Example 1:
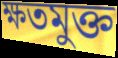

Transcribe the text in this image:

ক্ষতমুক্ত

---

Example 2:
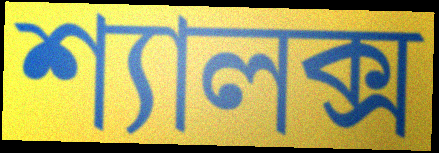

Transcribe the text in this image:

শ্যালক্স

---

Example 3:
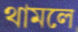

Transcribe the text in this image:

থামলে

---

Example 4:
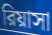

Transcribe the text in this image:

রিয়াসা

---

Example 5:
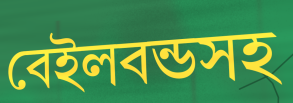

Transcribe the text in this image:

বেইলবন্ডসহ